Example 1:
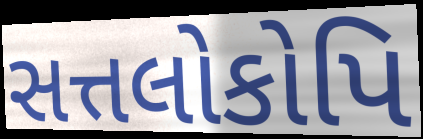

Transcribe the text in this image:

સત્તલોકોપિ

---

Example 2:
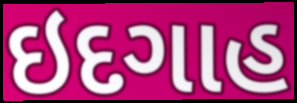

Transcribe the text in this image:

ઇદગાહ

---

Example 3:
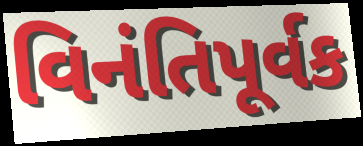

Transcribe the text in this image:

વિનંતિપૂર્વક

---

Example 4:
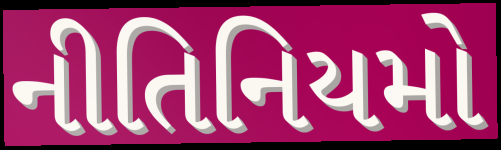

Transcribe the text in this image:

નીતિનિયમો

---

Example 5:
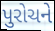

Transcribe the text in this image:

પુરોચને